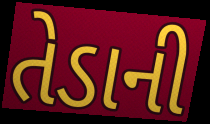
તેડાની